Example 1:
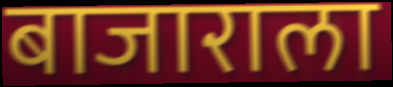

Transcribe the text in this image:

बाजाराला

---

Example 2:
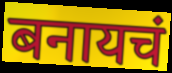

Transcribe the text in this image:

बनायचं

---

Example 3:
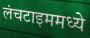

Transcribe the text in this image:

लंचटाइममध्ये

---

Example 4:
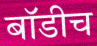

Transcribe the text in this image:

बॉडीच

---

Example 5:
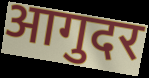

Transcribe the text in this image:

आगुदर